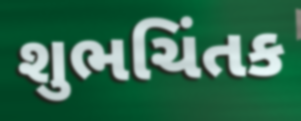
શુભચિંતક